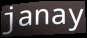
janay